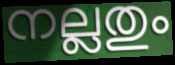
നല്ലതും